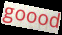
goood